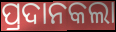
ପ୍ରଦାନକଲା